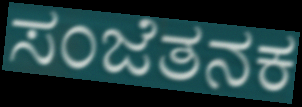
ಸಂಜೆತನಕ